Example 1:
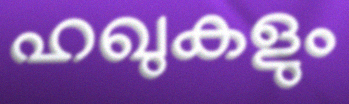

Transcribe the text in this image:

ഹഖുകളും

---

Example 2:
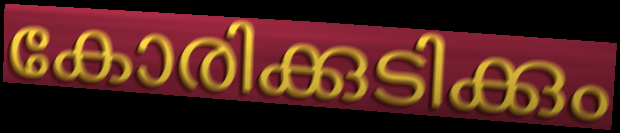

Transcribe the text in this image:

കോരിക്കുടിക്കും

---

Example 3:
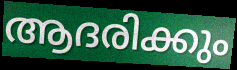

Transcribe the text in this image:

ആദരിക്കും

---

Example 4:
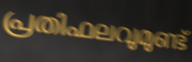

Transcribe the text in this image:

പ്രതിഫലവുമുണ്ട്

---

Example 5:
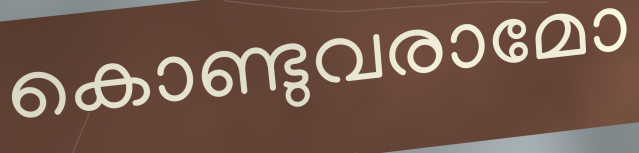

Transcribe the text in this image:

കൊണ്ടുവരാമോ